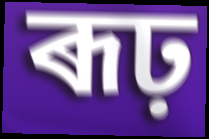
ৰূঢ়